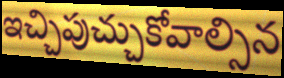
ఇచ్చిపుచ్చుకోవాల్సిన